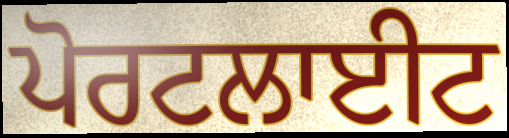
ਪੋਰਟਲਾਈਟ